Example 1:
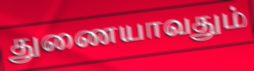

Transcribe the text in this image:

துணையாவதும்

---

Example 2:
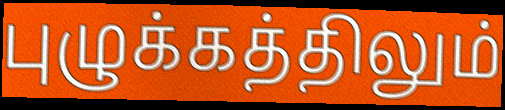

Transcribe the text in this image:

புழுக்கத்திலும்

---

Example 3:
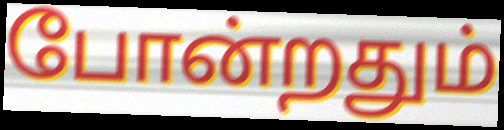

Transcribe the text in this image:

போன்றதும்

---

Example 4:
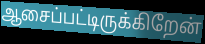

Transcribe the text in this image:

ஆசைப்பட்டிருக்கிறேன்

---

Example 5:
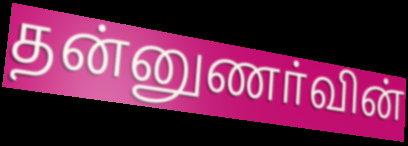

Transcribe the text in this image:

தன்னுணர்வின்